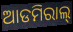
ଆଡମିରାଲ୍